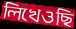
লিখেওছি